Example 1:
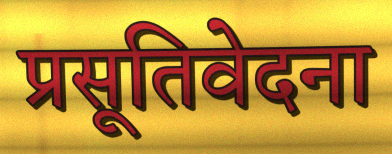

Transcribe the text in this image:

प्रसूतिवेदना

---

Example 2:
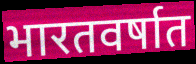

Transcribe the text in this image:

भारतवर्षात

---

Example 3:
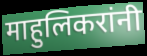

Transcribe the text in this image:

माहुलिकरांनी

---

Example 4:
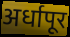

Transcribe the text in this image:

अर्धापूर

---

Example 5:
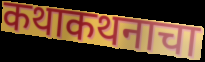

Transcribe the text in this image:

कथाकथनाचा